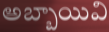
అబ్బాయివి